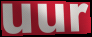
uur